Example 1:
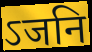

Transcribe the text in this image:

ऽजनि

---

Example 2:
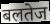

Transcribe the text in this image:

बलतेज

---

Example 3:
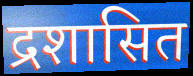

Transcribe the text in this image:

द्रशासित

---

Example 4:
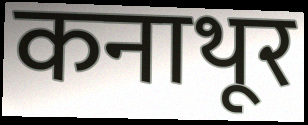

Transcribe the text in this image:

कनाथूर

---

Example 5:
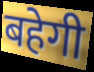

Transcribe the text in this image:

बहेगी